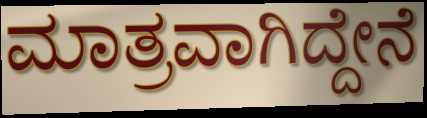
ಮಾತ್ರವಾಗಿದ್ದೇನೆ